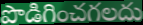
పొడిగించగలదు